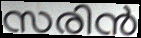
സരിൻ